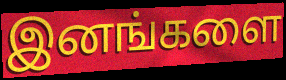
இனங்களை